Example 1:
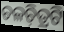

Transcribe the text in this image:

ଚଳଚ଼ିତ୍ରଟି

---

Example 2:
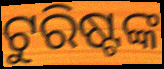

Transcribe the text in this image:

ଟୁରିଷ୍ଟଙ୍କ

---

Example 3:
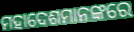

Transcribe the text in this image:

ମହାଦେଶମାନଙ୍କରେ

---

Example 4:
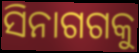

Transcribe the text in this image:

ସିନାଗଗକୁ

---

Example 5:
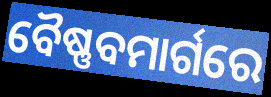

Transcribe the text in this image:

ବୈଷ୍ଣବମାର୍ଗରେ